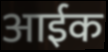
आईक